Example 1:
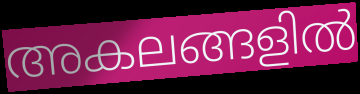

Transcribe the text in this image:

അകലങ്ങളിൽ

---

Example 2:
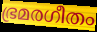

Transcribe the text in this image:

ഭ്രമരഗീതം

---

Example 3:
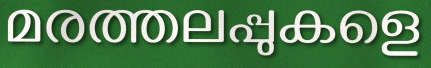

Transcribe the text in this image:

മരത്തലപ്പുകളെ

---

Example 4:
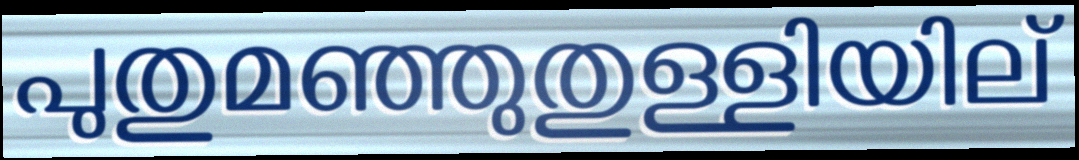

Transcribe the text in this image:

പുതുമഞ്ഞുതുള്ളിയില്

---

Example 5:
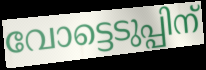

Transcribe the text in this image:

വോട്ടെടുപ്പിന്